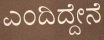
ಎಂದಿದ್ದೇನೆ